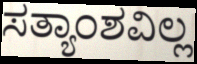
ಸತ್ಯಾಂಶವಿಲ್ಲ